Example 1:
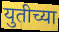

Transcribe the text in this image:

युतीच्या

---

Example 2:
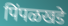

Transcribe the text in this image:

पिंपळखडे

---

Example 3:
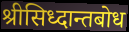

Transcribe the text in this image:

श्रीसिध्दान्तबोध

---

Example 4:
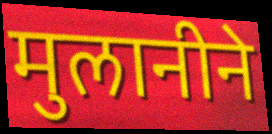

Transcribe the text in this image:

मुलानीने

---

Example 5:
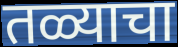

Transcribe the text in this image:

तळ्याचा